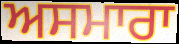
ਅਸਮਾਰਾ